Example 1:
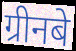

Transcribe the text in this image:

ग्रीनबे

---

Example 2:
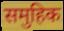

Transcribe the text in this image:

समुहिक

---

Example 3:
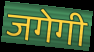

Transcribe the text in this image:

जगेगी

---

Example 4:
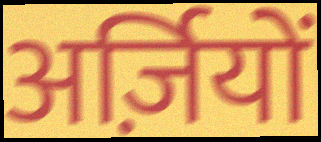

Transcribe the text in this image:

अर्ज़ियों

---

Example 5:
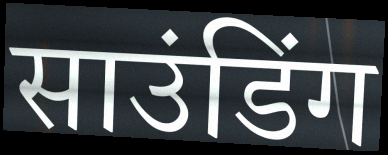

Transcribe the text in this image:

साउंडिंग